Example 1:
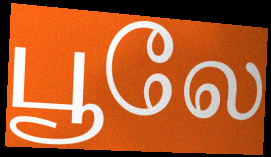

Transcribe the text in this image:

பூலே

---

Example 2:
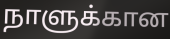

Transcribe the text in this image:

நாளுக்கான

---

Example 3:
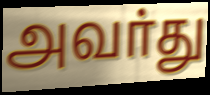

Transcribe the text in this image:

அவர்து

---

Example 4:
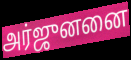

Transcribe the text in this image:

அர்ஜுனனை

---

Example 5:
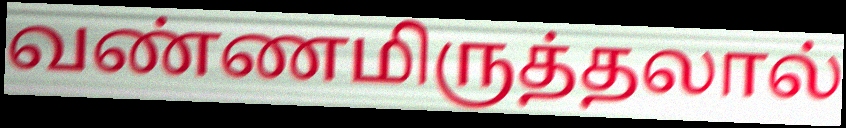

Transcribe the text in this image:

வண்ணமிருத்தலால்